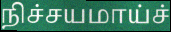
நிச்சயமாய்ச்